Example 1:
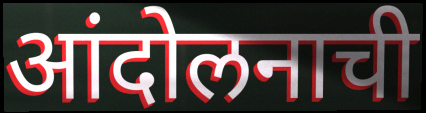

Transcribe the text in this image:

आंदोलनाची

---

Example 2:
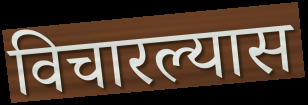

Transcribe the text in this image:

विचारल्यास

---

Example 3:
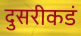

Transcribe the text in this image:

दुसरीकडं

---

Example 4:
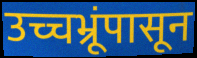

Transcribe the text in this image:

उच्चभ्रूंपासून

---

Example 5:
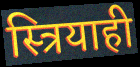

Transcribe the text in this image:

स्त्रियाही